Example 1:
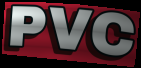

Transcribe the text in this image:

PVC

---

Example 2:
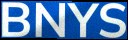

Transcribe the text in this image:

BNYS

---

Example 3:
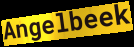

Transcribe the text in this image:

Angelbeek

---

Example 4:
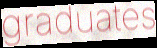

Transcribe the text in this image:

graduates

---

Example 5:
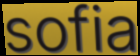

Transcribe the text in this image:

sofia